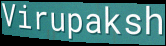
Virupaksh